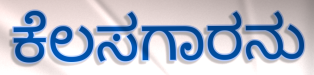
ಕೆಲಸಗಾರನು